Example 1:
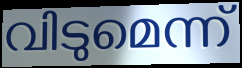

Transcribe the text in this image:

വിടുമെന്ന്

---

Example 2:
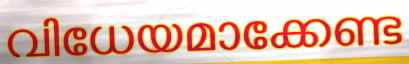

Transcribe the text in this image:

വിധേയമാക്കേണ്ട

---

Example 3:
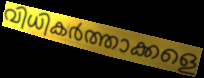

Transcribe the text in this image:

വിധികർത്താക്കളെ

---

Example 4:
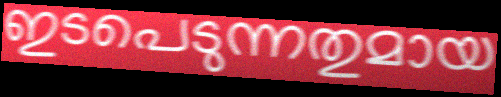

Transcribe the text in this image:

ഇടപെടുന്നതുമായ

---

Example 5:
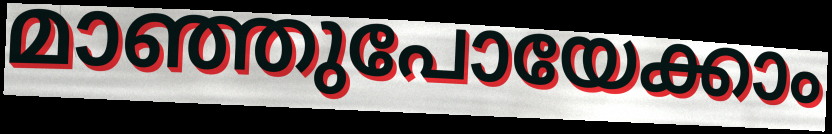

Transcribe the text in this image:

മാഞ്ഞുപോയേക്കാം